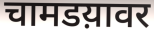
चामडय़ावर